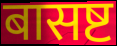
बासष्ट